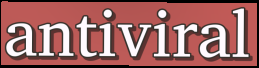
antiviral